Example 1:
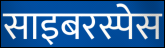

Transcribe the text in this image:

साइबरस्पेस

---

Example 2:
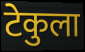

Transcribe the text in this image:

टेकुला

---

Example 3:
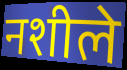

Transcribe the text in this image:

नशीले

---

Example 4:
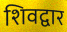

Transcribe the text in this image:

शिवद्वार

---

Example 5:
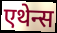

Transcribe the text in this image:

एथेन्स